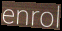
enrol